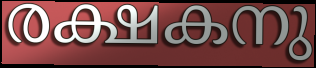
രക്ഷകനു